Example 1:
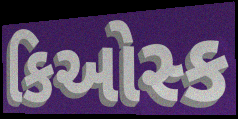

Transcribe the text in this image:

કિઓસ્ક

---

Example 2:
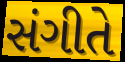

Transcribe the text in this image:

સંગીતે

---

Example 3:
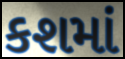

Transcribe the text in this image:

કશમાં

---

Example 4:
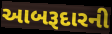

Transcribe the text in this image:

આબરૂદારની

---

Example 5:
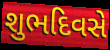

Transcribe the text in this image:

શુભદિવસે